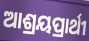
ଆଶ୍ରୟପ୍ରାର୍ଥୀ